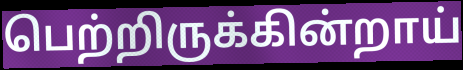
பெற்றிருக்கின்றாய்